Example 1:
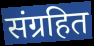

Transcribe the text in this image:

संग्रहित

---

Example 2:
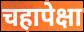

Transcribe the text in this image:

चहापेक्षा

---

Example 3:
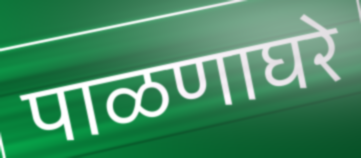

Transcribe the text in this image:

पाळणाघरे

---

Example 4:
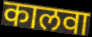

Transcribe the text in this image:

कालवा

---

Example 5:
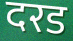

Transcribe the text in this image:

दरड